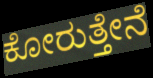
ಕೋರುತ್ತೇನೆ